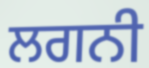
ਲਗਨੀ